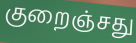
குறைஞ்சது